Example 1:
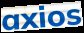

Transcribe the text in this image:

axios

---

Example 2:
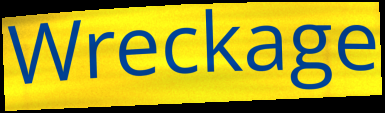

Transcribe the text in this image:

Wreckage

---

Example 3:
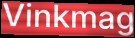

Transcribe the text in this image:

Vinkmag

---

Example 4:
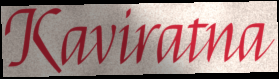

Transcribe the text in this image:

Kaviratna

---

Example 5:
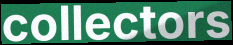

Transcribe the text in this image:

collectors